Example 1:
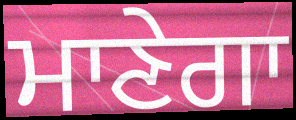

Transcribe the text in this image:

ਮਾਣੇਗਾ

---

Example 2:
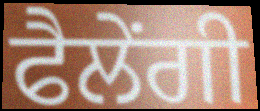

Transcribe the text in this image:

ਫੈਲੇਂਗੀ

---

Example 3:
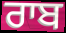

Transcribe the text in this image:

ਰਾਬ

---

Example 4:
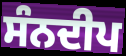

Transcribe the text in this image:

ਸੰਨਦੀਪ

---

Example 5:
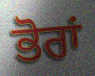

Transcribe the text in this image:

ਭੋਰਾਂ